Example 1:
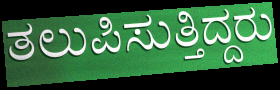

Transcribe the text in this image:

ತಲುಪಿಸುತ್ತಿದ್ದರು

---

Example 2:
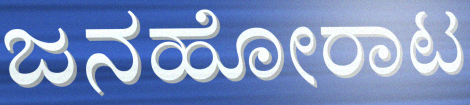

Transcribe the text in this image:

ಜನಹೋರಾಟ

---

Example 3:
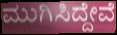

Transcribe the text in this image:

ಮುಗಿಸಿದ್ದೇವೆ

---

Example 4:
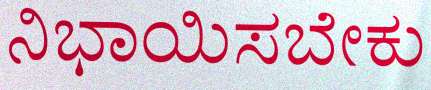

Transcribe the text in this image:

ನಿಭಾಯಿಸಬೇಕು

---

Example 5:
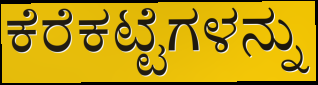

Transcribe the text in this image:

ಕೆರೆಕಟ್ಟೆಗಳನ್ನು